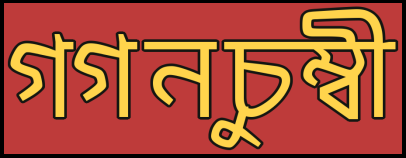
গগনচুম্বী